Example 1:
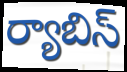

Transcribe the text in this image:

ర్యాబిస్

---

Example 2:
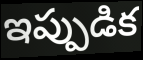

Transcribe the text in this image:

ఇప్పుడిక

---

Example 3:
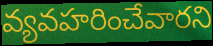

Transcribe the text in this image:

వ్యవహరించేవారని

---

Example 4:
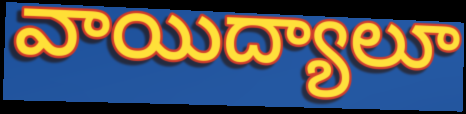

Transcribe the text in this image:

వాయిద్యాలూ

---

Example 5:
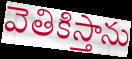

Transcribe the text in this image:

వెతికిస్తాను